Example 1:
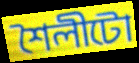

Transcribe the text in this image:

শৈলীটো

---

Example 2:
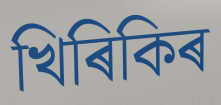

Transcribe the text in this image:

খিৰিকিৰ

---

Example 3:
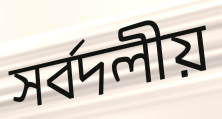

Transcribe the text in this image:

সৰ্বদলীয়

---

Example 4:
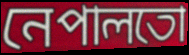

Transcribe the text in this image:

নেপালতো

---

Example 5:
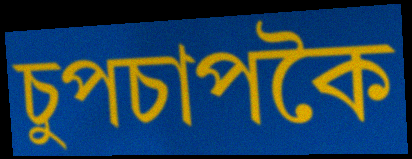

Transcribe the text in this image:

চুপচাপকৈ